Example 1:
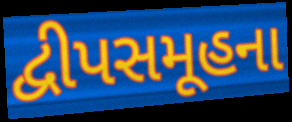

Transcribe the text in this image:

દ્વીપસમૂહના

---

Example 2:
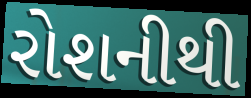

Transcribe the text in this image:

રોશનીથી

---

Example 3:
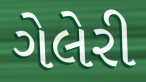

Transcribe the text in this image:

ગેલેરી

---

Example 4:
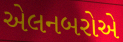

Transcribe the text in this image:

એલનબરોએ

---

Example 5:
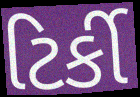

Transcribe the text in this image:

ટિર્કી